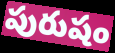
పురుషం